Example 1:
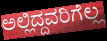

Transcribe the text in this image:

ಅಲ್ಲಿದ್ದವರಿಗೆಲ್ಲ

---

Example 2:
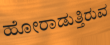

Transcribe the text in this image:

ಹೋರಾಡುತ್ತಿರುವ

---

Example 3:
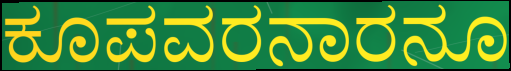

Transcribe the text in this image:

ಕೂಪವರನಾರನೂ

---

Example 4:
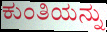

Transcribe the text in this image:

ಕುಂತಿಯನ್ನು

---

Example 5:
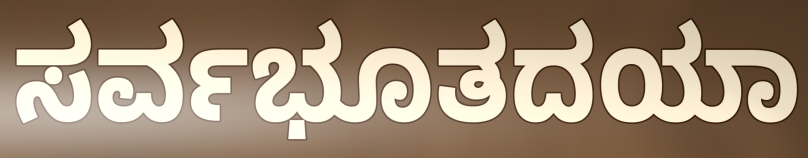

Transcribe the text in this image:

ಸರ್ವಭೂತದಯಾ